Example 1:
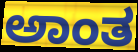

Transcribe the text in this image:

ಅಾಂತ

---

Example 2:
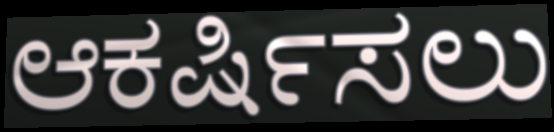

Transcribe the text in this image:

ಆಕರ್ಷಿಸಲು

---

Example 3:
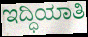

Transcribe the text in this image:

ಇದ್ಧಿಯಾತಿ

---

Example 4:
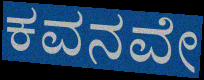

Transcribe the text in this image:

ಕವನವೇ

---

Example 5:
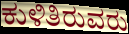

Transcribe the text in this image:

ಕುಳಿತಿರುವರು